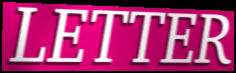
LETTER